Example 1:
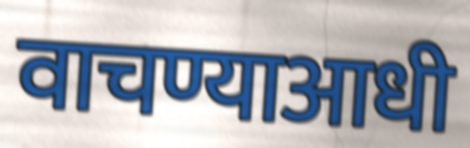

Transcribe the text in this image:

वाचण्याआधी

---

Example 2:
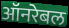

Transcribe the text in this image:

ऑनरेबल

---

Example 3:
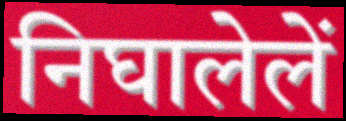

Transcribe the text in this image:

निघालेलें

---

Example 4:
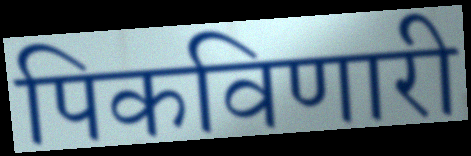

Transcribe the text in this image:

पिकविणारी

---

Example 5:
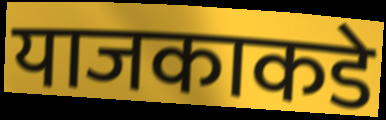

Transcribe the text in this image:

याजकाकडे